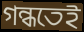
গন্ধতেই